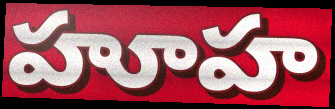
హూహ